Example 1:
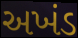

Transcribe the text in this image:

અખંડ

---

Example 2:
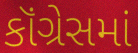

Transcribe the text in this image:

કૉંગ્રેસમાં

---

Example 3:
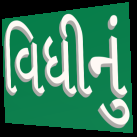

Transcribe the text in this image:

વિધીનું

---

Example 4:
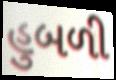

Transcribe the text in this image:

હુબળી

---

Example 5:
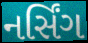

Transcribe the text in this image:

નર્સિંગ